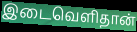
இடைவெளிதான்